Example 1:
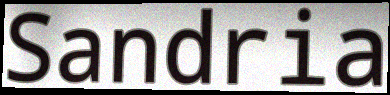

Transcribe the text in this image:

Sandria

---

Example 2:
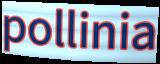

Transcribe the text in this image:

pollinia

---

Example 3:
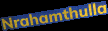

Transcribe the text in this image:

Nrahamthulla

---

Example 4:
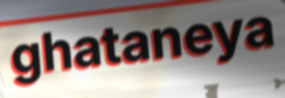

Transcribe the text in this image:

ghataneya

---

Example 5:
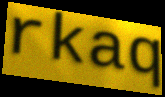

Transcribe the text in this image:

rkaq